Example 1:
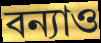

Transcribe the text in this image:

বন্যাও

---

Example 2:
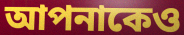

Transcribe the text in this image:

আপনাকেও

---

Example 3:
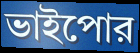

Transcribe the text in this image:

ভাইপোর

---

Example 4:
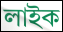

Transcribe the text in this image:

লাইক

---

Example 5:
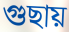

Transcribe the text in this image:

গুছায়